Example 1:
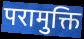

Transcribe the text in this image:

परामुक्ति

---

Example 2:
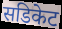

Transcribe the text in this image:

सडिकेट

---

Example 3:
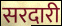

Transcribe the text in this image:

सरदारी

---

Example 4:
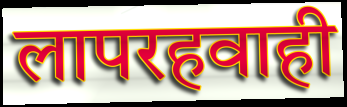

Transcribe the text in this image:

लापरहवाही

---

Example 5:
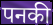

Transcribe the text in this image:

पनकी